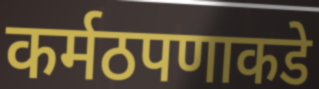
कर्मठपणाकडे